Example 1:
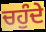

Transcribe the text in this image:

ਚਹੁੰਦੇ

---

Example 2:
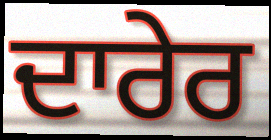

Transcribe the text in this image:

ਦਾਰੇਰ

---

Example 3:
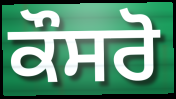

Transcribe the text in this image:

ਕੌਸਰੋ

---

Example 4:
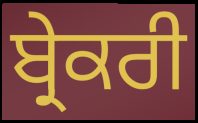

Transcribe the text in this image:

ਬ੍ਰੇਕਰੀ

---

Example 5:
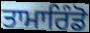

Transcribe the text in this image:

ਤਾਮਾਰਿੰਡੋ